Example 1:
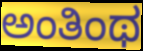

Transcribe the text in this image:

ಅಂತಿಂಥ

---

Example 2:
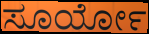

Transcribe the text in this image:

ಸೂರ್ಯೋ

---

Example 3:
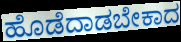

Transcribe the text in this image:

ಹೊಡೆದಾಡಬೇಕಾದ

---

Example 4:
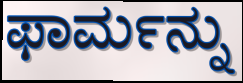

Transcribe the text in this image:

ಫಾರ್ಮನ್ನು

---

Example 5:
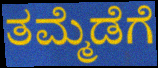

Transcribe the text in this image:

ತಮ್ಮೆಡೆಗೆ